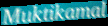
Muktikamal